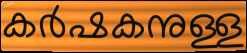
കർഷകനുള്ള